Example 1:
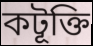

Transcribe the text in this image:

কটূক্তি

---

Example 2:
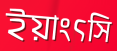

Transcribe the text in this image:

ইয়াংৎসি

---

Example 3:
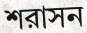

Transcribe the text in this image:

শরাসন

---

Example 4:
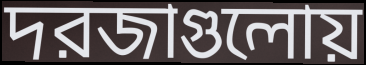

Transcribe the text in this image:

দরজাগুলোয়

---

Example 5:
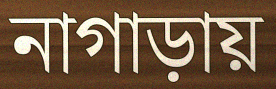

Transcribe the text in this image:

নাগাড়ায়